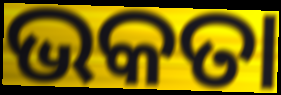
ଭକତା